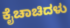
ಕೈಚಾಚಿದಳು